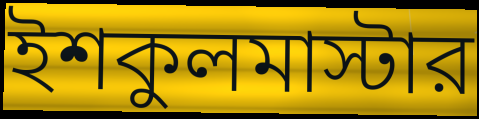
ইশকুলমাস্টার